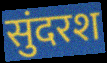
सुंदरश